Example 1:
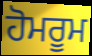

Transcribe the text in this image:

ਹੋਮਰੂਮ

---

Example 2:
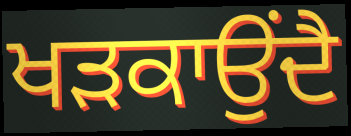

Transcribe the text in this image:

ਖੜਕਾਉਂਦੈ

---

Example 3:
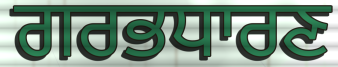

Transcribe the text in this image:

ਗਰਭਧਾਰਣ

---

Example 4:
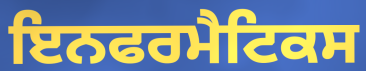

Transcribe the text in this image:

ਇਨਫਰਮੈਟਿਕਸ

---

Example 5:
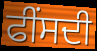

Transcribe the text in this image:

ਫੀਂਸਦੀ